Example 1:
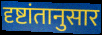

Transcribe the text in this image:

दृष्टांतानुसार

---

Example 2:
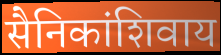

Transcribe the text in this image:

सैनिकांशिवाय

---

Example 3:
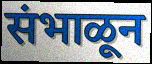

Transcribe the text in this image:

संभाळून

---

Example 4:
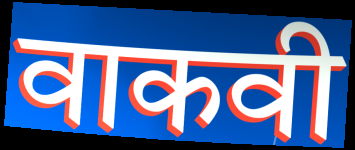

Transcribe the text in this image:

वाकवी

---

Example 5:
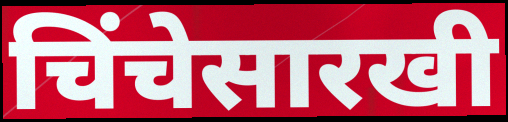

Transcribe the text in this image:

चिंचेसारखी